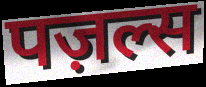
पज़ल्स